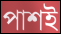
পাশই